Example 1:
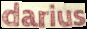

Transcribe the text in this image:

darius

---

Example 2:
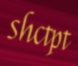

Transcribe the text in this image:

shctpt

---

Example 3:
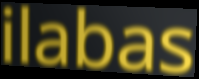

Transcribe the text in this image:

ilabas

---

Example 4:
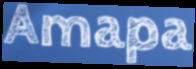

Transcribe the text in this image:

Amapa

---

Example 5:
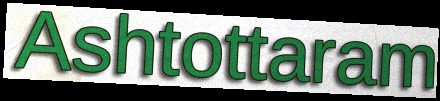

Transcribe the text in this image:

Ashtottaram